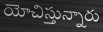
యోచిస్తున్నారు